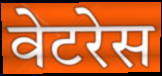
वेटरेस